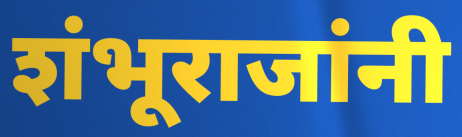
शंभूराजांनी